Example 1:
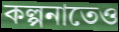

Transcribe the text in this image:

কল্পনাতেও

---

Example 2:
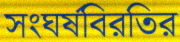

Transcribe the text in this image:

সংঘর্ষবিরতির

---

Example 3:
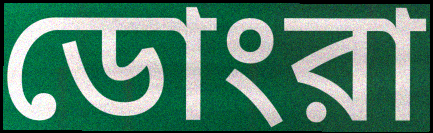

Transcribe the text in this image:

ডোংরা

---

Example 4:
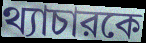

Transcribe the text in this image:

থ্যাচারকে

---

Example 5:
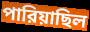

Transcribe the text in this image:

পারিয়াছিল